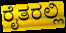
ರೈತರಲ್ಲಿ